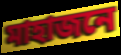
মাহাজনে